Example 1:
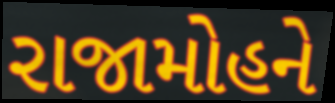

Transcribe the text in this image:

રાજામોહને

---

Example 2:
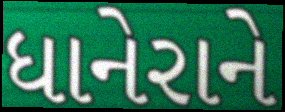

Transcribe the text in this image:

ધાનેરાને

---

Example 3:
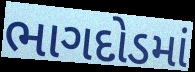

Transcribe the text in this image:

ભાગદોડમાં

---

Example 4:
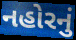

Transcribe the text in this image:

નહોરનું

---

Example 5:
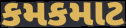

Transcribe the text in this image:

કમકમાટ